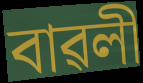
বাৱলী